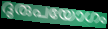
ദുരുപയോഗം